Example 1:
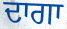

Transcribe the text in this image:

ਦਾਗਾ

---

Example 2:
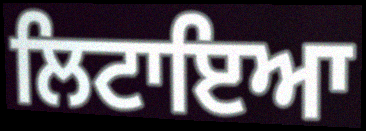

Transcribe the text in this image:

ਲਿਟਾਇਆ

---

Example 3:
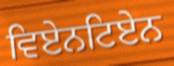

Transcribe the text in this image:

ਵਿਏਨਟਿਏਨ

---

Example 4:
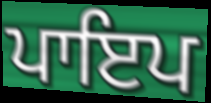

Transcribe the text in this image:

ਪਾਇਪ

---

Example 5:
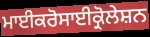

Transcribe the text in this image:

ਮਾਈਕਰੋਸਾਈਕ੍ਰੋਲੇਸ਼ਨ